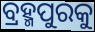
ବ୍ରହ୍ମପୁରକୁ